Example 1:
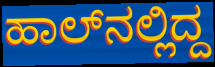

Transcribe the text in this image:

ಹಾಲ್‌ನಲ್ಲಿದ್ದ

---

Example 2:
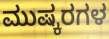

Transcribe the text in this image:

ಮುಷ್ಕರಗಳ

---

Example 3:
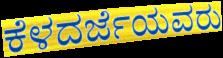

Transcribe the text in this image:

ಕೆಳದರ್ಜೆಯವರು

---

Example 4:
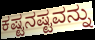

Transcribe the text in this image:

ಕಷ್ಟನಷ್ಟವನ್ನು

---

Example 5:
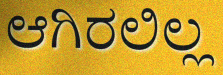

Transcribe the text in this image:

ಆಗಿರಲಿಲ್ಲ